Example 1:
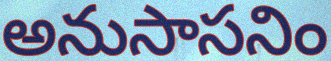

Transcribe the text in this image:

అనుసాసనిం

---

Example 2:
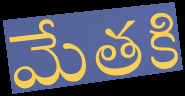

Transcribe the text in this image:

మేతకి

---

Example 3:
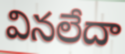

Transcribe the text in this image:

వినలేదా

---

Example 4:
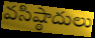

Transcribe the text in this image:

వసిష్ఠాదులు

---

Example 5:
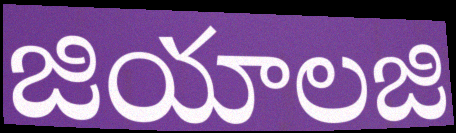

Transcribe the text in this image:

జియాలజి